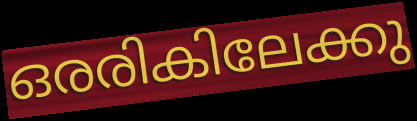
ഒരരികിലേക്കു